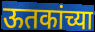
ऊतकांच्या